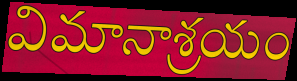
విమానాశ్రయం